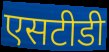
एसटीडी